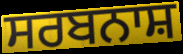
ਸਰਬਨਾਸ਼